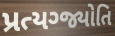
પ્રત્યગ્જ્યોતિ